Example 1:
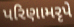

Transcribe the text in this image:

પરિણામરૃપે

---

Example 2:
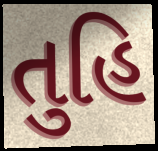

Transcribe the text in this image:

તુહિ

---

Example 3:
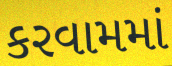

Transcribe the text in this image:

કરવામમાં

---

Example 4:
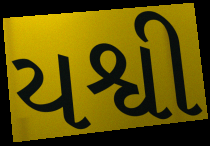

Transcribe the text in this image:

યશ્વી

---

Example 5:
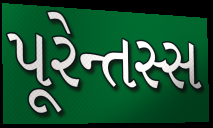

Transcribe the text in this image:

પૂરેન્તસ્સ